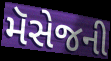
મૅસેજની